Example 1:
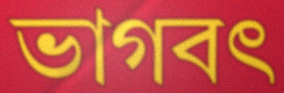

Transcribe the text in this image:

ভাগবৎ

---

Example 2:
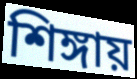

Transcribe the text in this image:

শিঙ্গায়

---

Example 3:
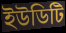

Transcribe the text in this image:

ইউডিটি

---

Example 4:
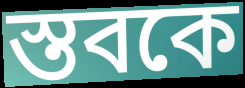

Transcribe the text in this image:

স্তবকে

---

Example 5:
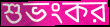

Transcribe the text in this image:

শুভংকর